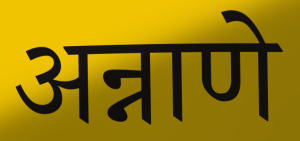
अन्नाणे